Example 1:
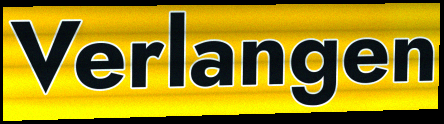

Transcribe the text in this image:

Verlangen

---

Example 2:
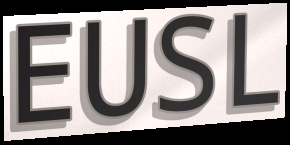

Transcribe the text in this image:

EUSL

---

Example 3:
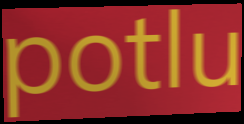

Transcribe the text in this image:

potlu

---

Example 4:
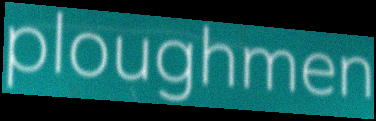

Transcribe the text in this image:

ploughmen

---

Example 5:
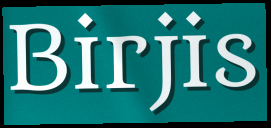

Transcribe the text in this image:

Birjis